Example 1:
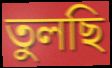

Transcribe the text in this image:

তুলছি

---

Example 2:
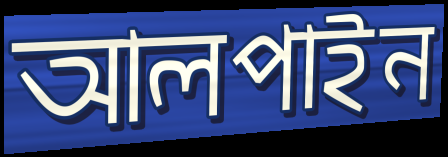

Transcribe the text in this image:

আলপাইন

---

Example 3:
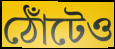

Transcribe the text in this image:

ঠোঁটেও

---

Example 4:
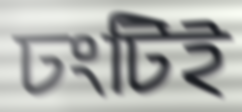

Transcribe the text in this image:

ঢংটিই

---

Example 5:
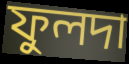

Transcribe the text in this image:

ফুলদা